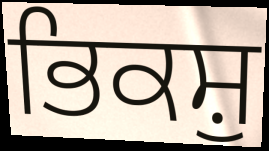
ਭਿਕਸ਼ੁ